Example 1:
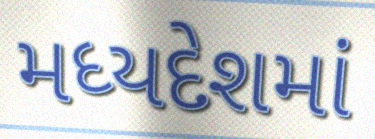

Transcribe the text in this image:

મધ્યદેશમાં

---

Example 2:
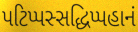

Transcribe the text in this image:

પટિપ્પસ્સદ્ધિપ્પહાનં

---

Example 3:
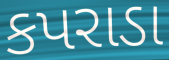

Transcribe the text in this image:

કપરાડા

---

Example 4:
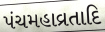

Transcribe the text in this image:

પંચમહાવ્રતાદિ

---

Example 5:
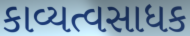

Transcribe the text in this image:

કાવ્યત્વસાધક